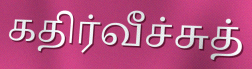
கதிர்வீச்சுத்